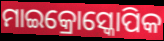
ମାଇକ୍ରୋସ୍କୋପିକ